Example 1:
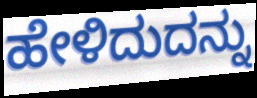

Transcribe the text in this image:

ಹೇಳಿದುದನ್ನು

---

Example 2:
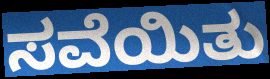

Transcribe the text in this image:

ಸವೆಯಿತು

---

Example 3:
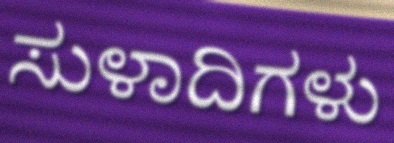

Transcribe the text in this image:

ಸುಳಾದಿಗಳು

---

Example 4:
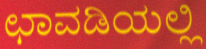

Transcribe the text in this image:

ಛಾವಡಿಯಲ್ಲಿ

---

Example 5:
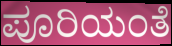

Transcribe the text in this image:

ಪೂರಿಯಂತೆ